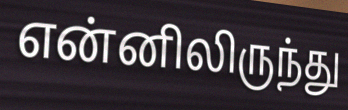
என்னிலிருந்து